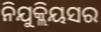
ନିଯୁକ୍ଲିୟସର